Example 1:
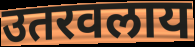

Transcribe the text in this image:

उतरवलाय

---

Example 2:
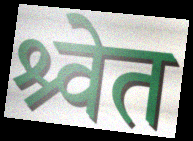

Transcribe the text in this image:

श्र्वेत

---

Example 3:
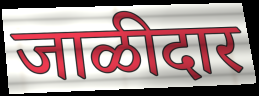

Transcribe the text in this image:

जाळीदार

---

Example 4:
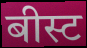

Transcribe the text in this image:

बीस्ट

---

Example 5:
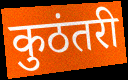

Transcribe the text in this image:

कुठंतरी